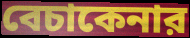
বেচাকেনার